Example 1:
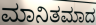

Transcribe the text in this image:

ಮಾನಿತಮಾದ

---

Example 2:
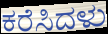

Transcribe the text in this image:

ಕರೆಸಿದಳು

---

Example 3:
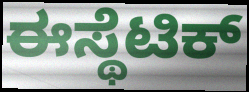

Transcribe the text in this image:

ಈಸ್ಥೆಟಿಕ್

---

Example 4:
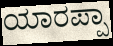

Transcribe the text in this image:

ಯಾರಪ್ಪಾ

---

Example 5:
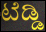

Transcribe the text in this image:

ಟೆಡ್ಡಿ